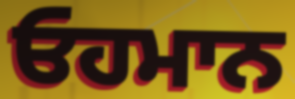
ਓਹਮਾਨ